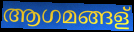
ആഗമങ്ങള്